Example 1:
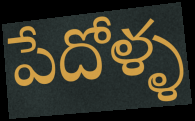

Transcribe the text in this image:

పేదోళ్ళ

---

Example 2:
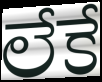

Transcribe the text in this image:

లేకే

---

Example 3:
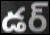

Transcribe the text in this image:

డర్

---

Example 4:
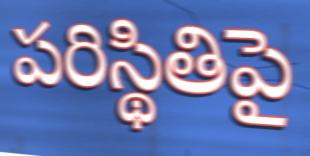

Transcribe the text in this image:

పరిస్థితిపై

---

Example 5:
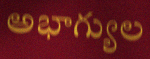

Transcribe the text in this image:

అభాగ్యుల